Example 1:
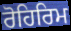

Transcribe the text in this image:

ਰੋਹਿਰਿਮ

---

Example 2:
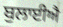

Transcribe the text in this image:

ਬੁਲਾਈਐ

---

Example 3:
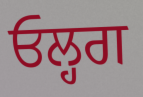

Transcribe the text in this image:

ਓਲ੍ਹਗ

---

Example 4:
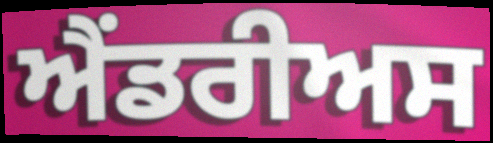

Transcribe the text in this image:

ਐਂਡਰੀਅਸ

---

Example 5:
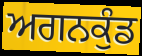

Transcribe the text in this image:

ਅਗਨਕੁੰਡ